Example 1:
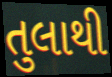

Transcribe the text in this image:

તુલાથી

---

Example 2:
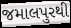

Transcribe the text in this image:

જમાલપુરથી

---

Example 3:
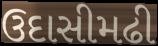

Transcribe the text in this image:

ઉદાસીમઢી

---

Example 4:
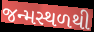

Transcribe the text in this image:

જન્મસ્થળથી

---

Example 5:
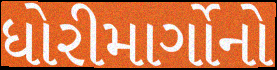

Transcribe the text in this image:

ધોરીમાર્ગોનો